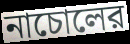
নাচোলের